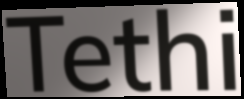
Tethi